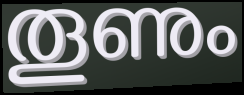
തൂണും